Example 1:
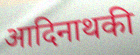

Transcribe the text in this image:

आदिनाथकी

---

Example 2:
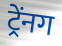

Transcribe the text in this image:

ट्र्रेंनग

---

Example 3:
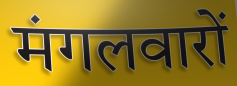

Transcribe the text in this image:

मंगलवारों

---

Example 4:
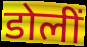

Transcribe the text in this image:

डोलीं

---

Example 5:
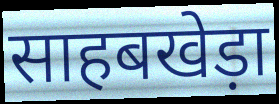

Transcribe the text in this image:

साहबखेड़ा